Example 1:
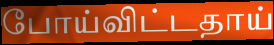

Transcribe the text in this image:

போய்விட்டதாய்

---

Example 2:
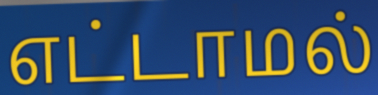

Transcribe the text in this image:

எட்டாமல்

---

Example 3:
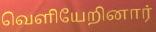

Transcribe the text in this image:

வெளியேறினார்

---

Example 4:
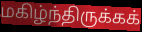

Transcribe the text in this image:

மகிழ்ந்திருக்கக்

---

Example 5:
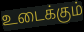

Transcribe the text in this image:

உடைக்கும்